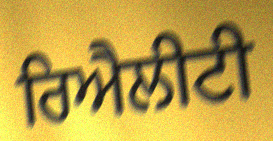
ਰਿਐਲੀਟੀ